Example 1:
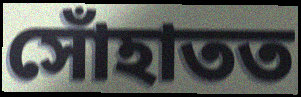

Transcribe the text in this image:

সোঁহাতত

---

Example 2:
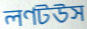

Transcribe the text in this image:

লণটউস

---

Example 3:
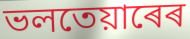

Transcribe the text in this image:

ভলতেয়াৰেৰ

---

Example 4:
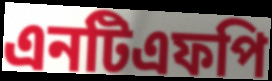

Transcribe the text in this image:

এনটিএফপি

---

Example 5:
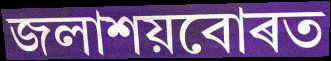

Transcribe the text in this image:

জলাশয়বোৰত